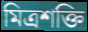
মিত্রশক্তি